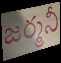
జర్మనీ